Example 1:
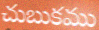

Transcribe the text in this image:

చుబుకము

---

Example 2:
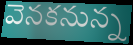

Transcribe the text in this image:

వెనకనున్న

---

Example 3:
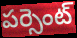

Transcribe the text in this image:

పర్సెంట్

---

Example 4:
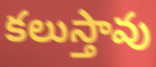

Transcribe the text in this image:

కలుస్తావు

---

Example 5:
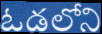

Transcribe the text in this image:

ఓడలోని